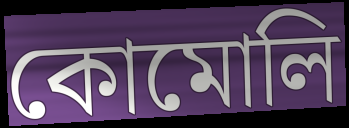
কোমোলি